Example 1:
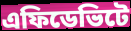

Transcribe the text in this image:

এফিডেভিটে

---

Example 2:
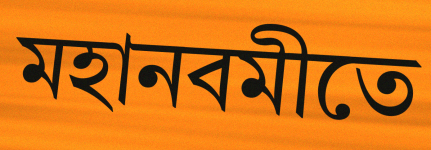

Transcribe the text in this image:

মহানবমীতে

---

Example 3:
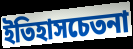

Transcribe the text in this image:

ইতিহাসচেতনা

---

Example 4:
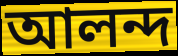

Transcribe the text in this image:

আলন্দ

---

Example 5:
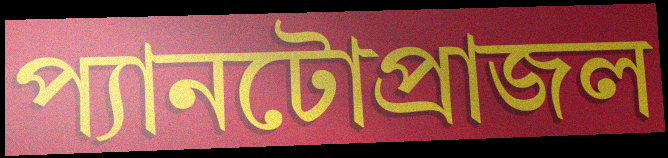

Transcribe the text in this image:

প্যানটোপ্রাজল